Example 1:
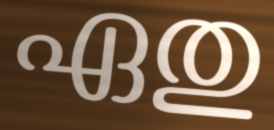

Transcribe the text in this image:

ഏതു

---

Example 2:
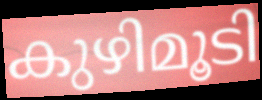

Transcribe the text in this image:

കുഴിമൂടി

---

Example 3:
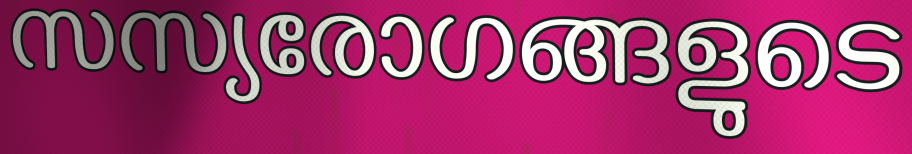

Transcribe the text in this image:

സസ്യരോഗങ്ങളുടെ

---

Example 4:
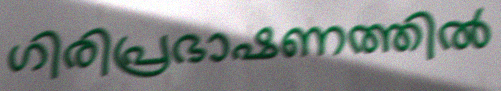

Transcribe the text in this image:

ഗിരിപ്രഭാഷണത്തിൽ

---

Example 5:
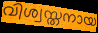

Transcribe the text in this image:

വിശ്വസ്തനായ